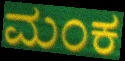
ಮಂಕ